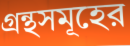
গ্রন্থসমূহের